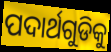
ପଦାର୍ଥଗୁଡିକୁ